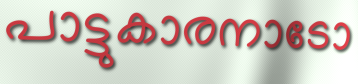
പാട്ടുകാരനാടോ